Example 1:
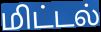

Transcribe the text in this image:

மிட்டல்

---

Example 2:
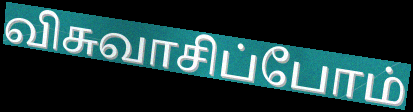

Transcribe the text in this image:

விசுவாசிப்போம்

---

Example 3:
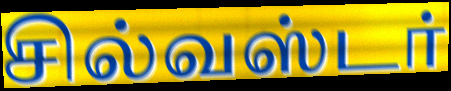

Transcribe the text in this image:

சில்வஸ்டர்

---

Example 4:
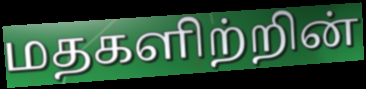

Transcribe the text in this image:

மதகளிற்றின்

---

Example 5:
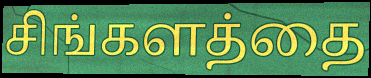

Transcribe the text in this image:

சிங்களத்தை